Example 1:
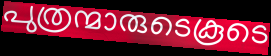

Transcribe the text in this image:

പുത്രന്മാരുടെകൂടെ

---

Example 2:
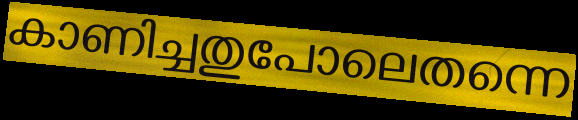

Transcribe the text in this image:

കാണിച്ചതുപോലെതന്നെ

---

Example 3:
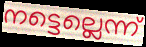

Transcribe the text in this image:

നട്ടെല്ലെന്ന്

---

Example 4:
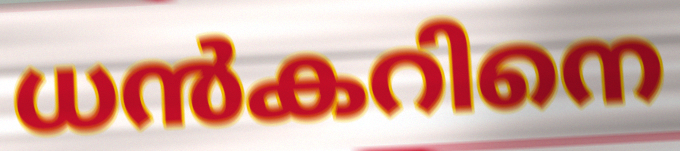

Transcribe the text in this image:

ധൻകറിനെ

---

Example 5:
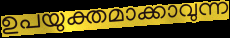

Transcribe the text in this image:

ഉപയുക്തമാക്കാവുന്ന